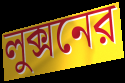
লুক্সনের